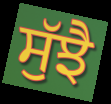
ਸੁੱਝੈ